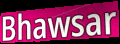
Bhawsar